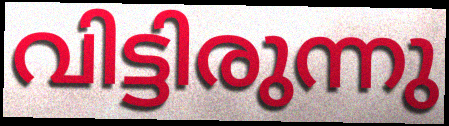
വിട്ടിരുന്നു